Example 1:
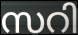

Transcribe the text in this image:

സറി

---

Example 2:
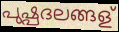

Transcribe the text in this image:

പുഷ്പദലങ്ങള്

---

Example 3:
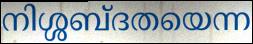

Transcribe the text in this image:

നിശ്ശബ്ദതയെന്ന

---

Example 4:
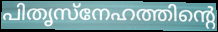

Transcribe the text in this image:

പിതൃസ്നേഹത്തിന്റെ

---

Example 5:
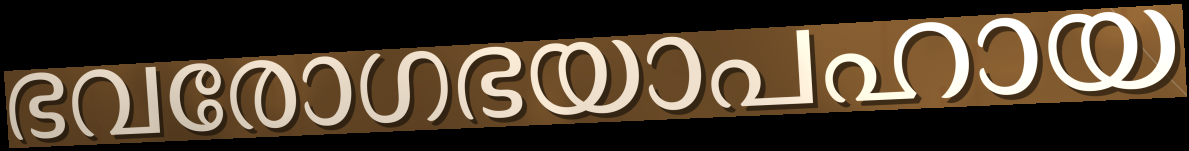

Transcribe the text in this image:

ഭവരോഗഭയാപഹായ